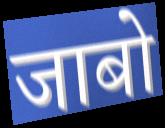
जाबो